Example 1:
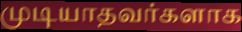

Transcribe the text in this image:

முடியாதவர்களாக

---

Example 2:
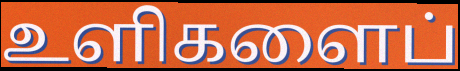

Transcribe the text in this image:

உளிகளைப்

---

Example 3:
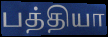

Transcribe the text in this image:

பத்தியா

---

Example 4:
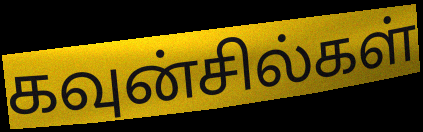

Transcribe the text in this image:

கவுன்சில்கள்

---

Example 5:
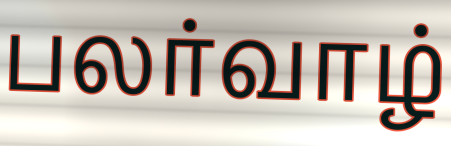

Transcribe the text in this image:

பலர்வாழ்